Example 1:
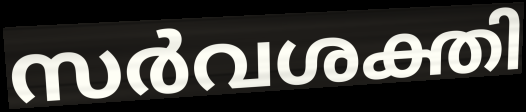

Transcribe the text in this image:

സർവശക്തി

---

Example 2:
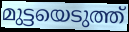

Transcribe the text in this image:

മുട്ടയെടുത്ത്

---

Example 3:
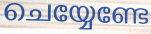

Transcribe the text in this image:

ചെയ്യേണ്ടേ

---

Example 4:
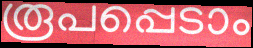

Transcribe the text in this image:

രൂപപ്പെടാം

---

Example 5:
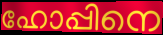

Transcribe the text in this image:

ഹോപ്പിനെ